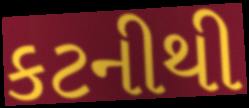
કટનીથી